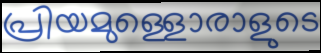
പ്രിയമുള്ളൊരാളുടെ